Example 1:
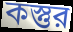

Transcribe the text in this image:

কস্তুর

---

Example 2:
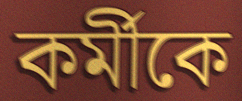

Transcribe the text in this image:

কর্মীকে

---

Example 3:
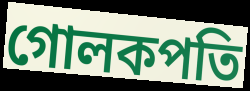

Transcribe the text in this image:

গোলকপতি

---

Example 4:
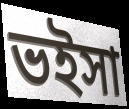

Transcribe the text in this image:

ভইসা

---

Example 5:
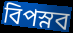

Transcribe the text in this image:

বিপস্নব